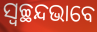
ସ୍ୱଚ୍ଛନ୍ଦଭାବେ